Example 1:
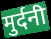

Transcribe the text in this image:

मुर्दनी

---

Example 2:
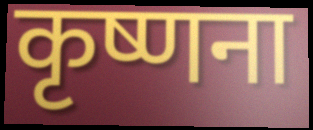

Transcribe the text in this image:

कृष्णना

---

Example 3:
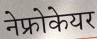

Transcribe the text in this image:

नेफ्रोकेयर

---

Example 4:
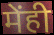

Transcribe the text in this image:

मेंही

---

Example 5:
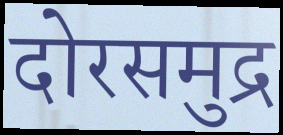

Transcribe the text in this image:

दोरसमुद्र